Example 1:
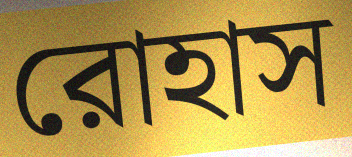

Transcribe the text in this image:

রোহাস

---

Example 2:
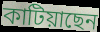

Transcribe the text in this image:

কাটিয়াছেন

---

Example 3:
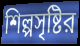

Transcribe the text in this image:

শিল্পসৃষ্টির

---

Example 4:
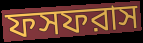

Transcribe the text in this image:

ফসফরাস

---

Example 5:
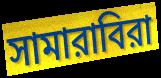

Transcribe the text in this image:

সামারাবিরা